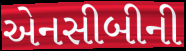
એનસીબીની